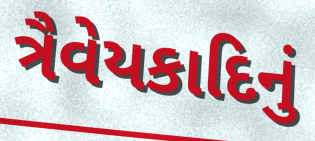
ત્રૈવેયકાદિનું